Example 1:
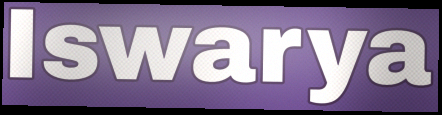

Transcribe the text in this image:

Iswarya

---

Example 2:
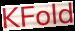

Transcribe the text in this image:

KFold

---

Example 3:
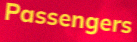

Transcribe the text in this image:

Passengers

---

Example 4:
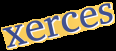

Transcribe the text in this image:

xerces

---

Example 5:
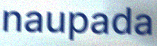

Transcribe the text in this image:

naupada